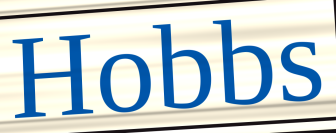
Hobbs